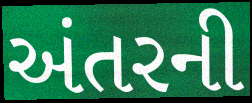
અંતરની